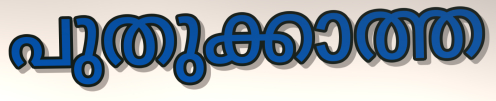
പുതുക്കാത്ത